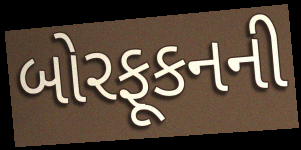
બોરફૂકનની